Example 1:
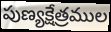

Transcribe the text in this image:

పుణ్యక్షేత్రముల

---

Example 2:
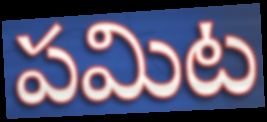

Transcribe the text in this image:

పమిట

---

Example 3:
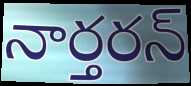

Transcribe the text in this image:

నార్తరన్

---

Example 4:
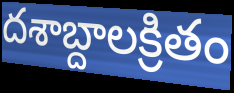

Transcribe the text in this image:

దశాబ్దాలక్రితం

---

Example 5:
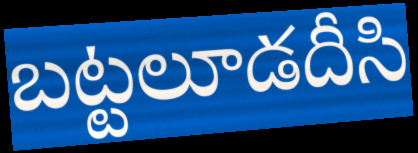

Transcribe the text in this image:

బట్టలూడదీసి